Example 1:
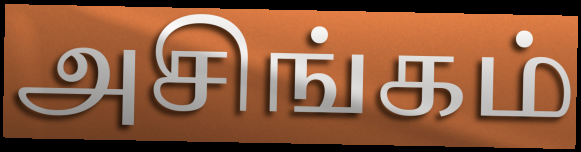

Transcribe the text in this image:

அசிங்கம்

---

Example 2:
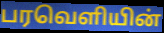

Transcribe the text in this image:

பரவெளியின்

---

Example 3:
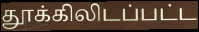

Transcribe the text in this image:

தூக்கிலிடப்பட்ட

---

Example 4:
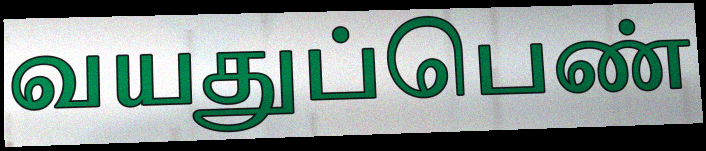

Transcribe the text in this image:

வயதுப்பெண்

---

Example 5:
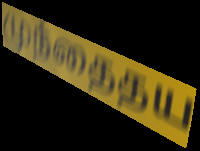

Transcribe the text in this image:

முந்தைதய